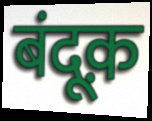
बंदूक़